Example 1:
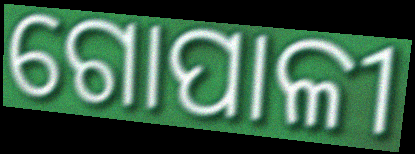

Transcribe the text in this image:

ଗୋପାଳୀ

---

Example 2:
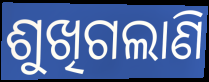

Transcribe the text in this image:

ଶୁଖିଗଲାଣି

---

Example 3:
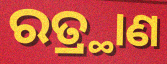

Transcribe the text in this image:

ରତ୍ର୍ଥାଣ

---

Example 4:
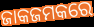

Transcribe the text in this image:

ଜାକଜମକରେ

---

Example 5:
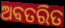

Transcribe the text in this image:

ଅବତରିତ